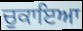
ਚੁਕਾਇਆ